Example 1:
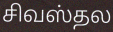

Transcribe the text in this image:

சிவஸ்தல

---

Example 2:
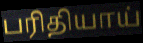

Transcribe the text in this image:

பரிதியாய்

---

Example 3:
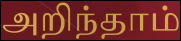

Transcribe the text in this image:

அறிந்தாம்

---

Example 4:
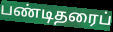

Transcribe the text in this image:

பண்டிதரைப்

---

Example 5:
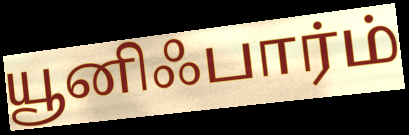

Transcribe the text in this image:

யூனிஃபார்ம்